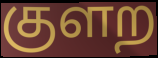
குளற